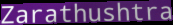
Zarathushtra